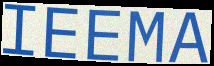
IEEMA